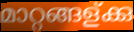
മാറ്റങ്ങള്ക്കു